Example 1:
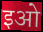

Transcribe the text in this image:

इओ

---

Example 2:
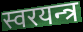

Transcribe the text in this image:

स्वरयन्त्र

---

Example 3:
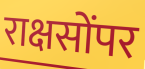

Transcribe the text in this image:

राक्षसोंपर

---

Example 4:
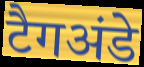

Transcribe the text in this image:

टैगअंडे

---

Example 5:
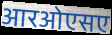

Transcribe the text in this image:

आरओएसए